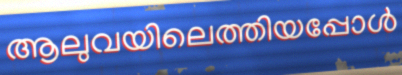
ആലുവയിലെത്തിയപ്പോൾ